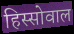
हिस्सोवाल